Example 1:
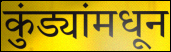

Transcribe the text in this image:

कुंड्यांमधून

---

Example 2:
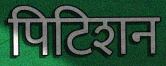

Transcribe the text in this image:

पिटिशन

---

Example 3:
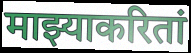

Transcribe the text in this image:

माझ्याकरितां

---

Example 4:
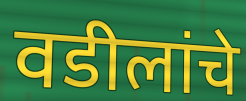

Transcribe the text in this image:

वडीलांचे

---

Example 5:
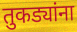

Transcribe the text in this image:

तुकड्यांना